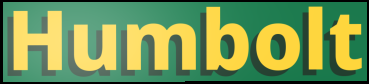
Humbolt